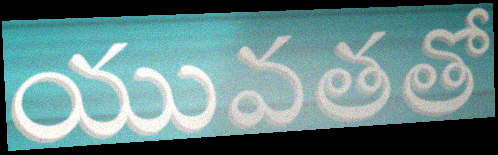
యువతతో